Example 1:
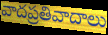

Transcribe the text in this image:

వాదప్రతివాదాలు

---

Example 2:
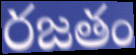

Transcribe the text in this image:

రజతం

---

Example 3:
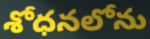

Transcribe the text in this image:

శోధనలోను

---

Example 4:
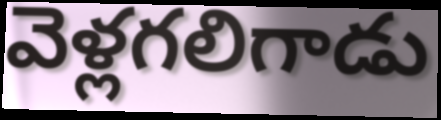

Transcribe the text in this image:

వెళ్లగలిగాడు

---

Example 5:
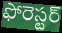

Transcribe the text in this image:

ఫోరెస్టర్